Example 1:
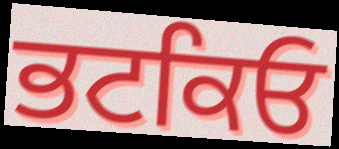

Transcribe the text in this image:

ਭਟਕਿਓ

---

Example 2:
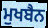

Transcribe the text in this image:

ਮੁਖਬੈਨ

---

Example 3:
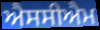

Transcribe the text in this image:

ਐਸਸੀਐਮ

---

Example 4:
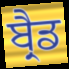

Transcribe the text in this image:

ਬ੍ਰੈਡ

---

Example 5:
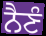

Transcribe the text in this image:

ਨੈਣੰ